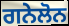
ਗਨੇਲੋਨ